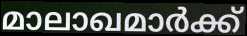
മാലാഖമാർക്ക്